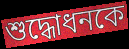
শুদ্ধোধনকে